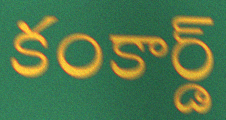
కంకార్డ్